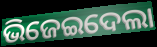
ଭିଜେଇଦେଲା